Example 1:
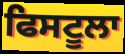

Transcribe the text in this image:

ਫਿਸਟੂਲਾ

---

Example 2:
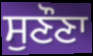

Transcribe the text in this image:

ਸੁਣੌਣਾ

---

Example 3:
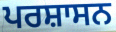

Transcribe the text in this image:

ਪਰਸ਼ਾਸਨ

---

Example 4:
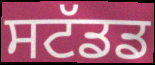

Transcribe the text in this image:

ਸਟੱਡਡ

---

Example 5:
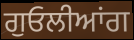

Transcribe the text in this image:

ਗੁਓਲੀਆਂਗ